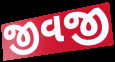
જીવજી